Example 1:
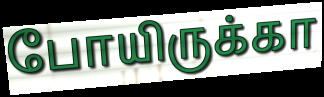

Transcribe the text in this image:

போயிருக்கா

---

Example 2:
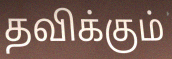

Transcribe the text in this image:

தவிக்கும்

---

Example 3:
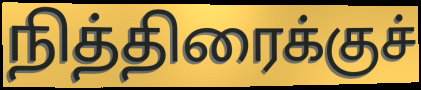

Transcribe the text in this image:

நித்திரைக்குச்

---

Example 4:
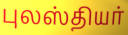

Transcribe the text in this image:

புலஸ்தியர்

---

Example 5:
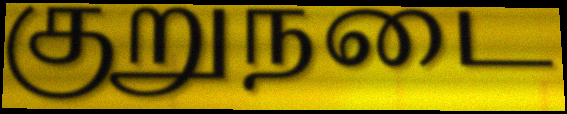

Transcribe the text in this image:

குறுநடை